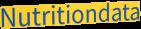
Nutritiondata